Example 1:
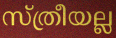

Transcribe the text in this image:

സ്ത്രീയല്ല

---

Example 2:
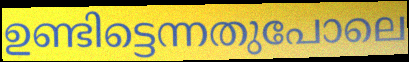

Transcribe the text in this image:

ഉണ്ടിട്ടെന്നതുപോലെ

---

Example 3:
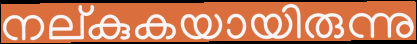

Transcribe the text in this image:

നല്കുകയായിരുന്നു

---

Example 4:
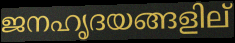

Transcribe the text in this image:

ജനഹൃദയങ്ങളില്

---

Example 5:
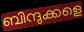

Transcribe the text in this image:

ബിന്ദുക്കളെ